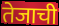
तेजाची